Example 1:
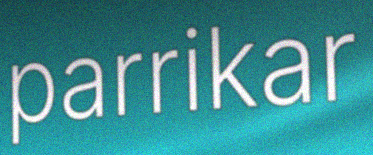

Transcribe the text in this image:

parrikar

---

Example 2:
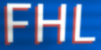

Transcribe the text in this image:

FHL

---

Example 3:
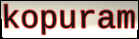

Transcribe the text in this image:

kopuram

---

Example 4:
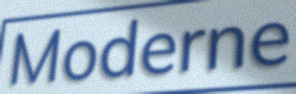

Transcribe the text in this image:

Moderne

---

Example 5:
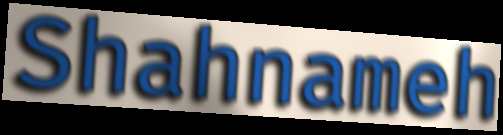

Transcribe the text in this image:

Shahnameh